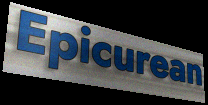
Epicurean